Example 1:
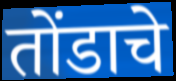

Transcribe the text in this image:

तोंडाचे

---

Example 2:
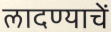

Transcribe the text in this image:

लादण्याचें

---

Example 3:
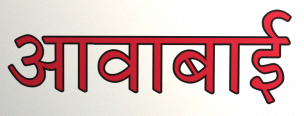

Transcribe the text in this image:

आवाबाई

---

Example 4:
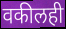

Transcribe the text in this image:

वकीलही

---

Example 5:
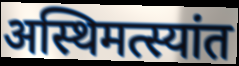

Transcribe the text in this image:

अस्थिमत्स्यांत